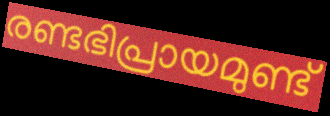
രണ്ടഭിപ്രായമുണ്ട്